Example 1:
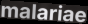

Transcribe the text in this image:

malariae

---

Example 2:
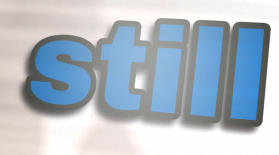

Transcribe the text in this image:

still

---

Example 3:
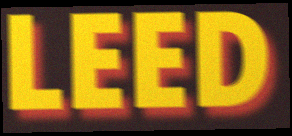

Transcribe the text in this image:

LEED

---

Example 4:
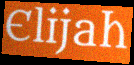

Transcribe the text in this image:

Elijah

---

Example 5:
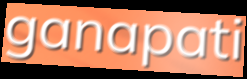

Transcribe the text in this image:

ganapati